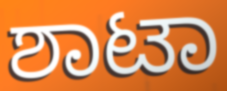
ಶಾಟಾ